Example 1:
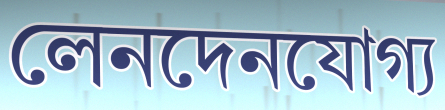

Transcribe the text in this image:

লেনদেনযোগ্য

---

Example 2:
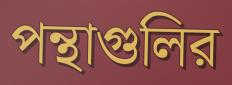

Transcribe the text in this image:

পন্থাগুলির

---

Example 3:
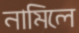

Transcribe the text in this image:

নামিলে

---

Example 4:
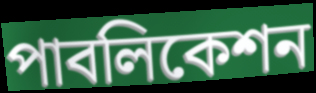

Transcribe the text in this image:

পাবলিকেশন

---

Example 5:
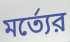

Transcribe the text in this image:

মর্ত্যের